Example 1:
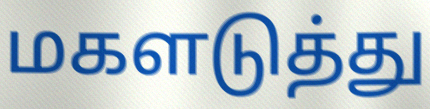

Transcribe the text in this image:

மகளடுத்து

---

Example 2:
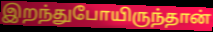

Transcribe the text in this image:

இறந்துபோயிருந்தான்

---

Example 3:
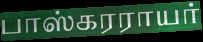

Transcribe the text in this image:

பாஸ்கரராயர்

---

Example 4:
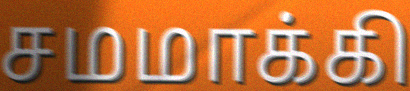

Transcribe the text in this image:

சமமாக்கி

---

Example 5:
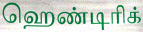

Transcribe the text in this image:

ஹெண்டிரிக்